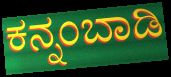
ಕನ್ನಂಬಾಡಿ